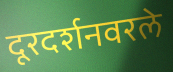
दूरदर्शनवरले